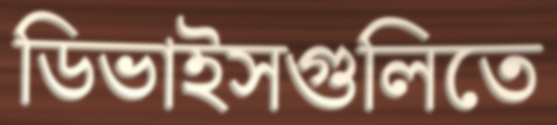
ডিভাইসগুলিতে